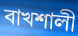
বাখশালী